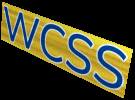
WCSS